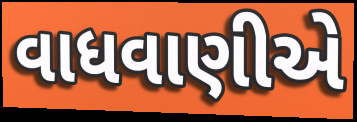
વાધવાણીએ